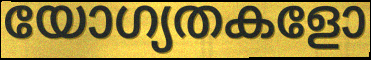
യോഗ്യതകളോ